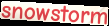
snowstorm